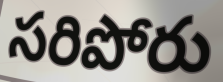
సరిపోరు